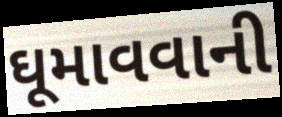
ઘૂમાવવાની